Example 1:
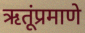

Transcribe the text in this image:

ऋतूंप्रमाणे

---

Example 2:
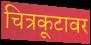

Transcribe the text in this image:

चित्रकूटावर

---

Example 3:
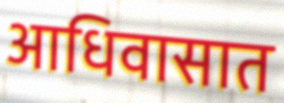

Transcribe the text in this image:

आधिवासात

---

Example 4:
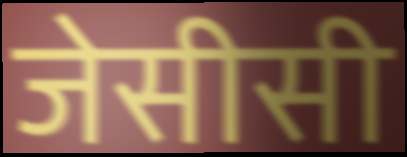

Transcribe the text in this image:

जेसीसी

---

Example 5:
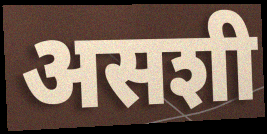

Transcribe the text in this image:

असशी